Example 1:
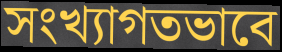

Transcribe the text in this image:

সংখ্যাগতভাবে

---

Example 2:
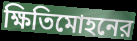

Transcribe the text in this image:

ক্ষিতিমোহনের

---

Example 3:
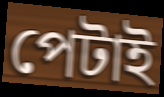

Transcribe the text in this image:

পেটাই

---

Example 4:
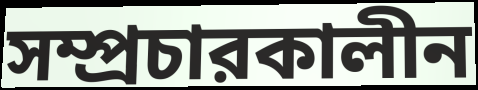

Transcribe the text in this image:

সম্প্রচারকালীন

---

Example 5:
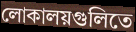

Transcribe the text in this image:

লোকালয়গুলিতে